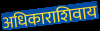
अधिकाराशिवाय